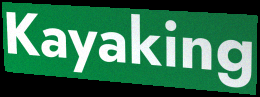
Kayaking